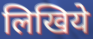
लिखिये